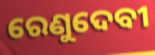
ରେଣୁଦେବୀ